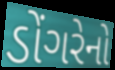
ડોંગરેનો